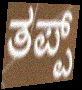
ತಪ್ಪ್